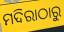
ମଦିରାଠାରୁ